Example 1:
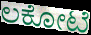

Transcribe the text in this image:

ಲಕೋಟೆ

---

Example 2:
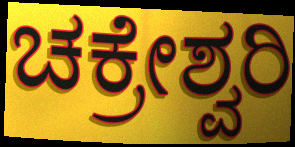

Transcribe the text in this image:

ಚಕ್ರೇಶ್ವರಿ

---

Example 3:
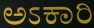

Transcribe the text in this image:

ಅಽಕಾರಿ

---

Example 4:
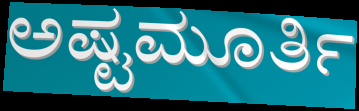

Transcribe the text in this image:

ಅಷ್ಟಮೂರ್ತಿ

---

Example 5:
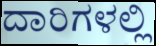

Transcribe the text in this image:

ದಾರಿಗಳಲ್ಲಿ